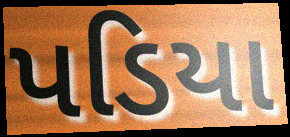
પડિયા